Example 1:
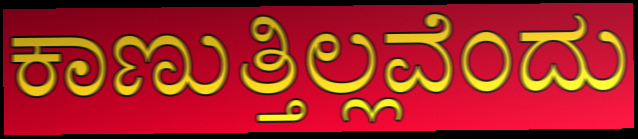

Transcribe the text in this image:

ಕಾಣುತ್ತಿಲ್ಲವೆಂದು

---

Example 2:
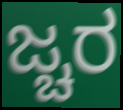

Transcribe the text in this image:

ಜ್ಚರ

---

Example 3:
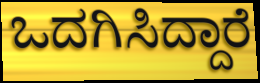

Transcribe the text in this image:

ಒದಗಿಸಿದ್ದಾರೆ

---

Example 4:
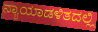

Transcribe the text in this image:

ನ್ಯಾಯಾಡಳಿತದಲ್ಲಿ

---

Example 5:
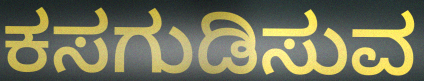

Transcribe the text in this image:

ಕಸಗುಡಿಸುವ